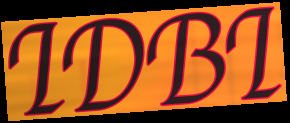
IDBI